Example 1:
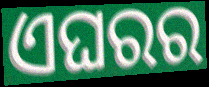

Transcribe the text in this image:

ଏଘରର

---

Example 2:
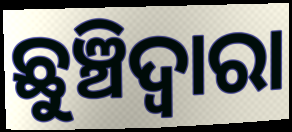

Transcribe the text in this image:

ଛୁଞ୍ଚିଦ୍ଵାରା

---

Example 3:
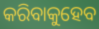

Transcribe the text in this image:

କରିବାକୁହେବ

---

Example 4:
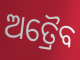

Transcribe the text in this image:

ଅତ୍ରୈବ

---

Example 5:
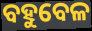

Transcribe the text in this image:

ବହୁବେଳ